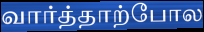
வார்த்தாற்போல